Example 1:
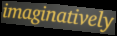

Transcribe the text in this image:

imaginatively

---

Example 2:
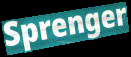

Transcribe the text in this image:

Sprenger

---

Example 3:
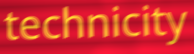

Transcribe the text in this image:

technicity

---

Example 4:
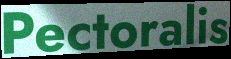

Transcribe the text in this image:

Pectoralis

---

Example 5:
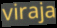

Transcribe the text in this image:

viraja